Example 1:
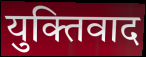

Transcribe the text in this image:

युक्‍तिवाद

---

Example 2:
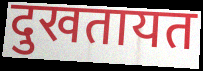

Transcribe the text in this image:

दुखतायत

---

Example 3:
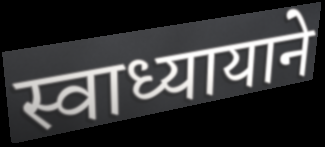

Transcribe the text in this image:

स्वाध्यायाने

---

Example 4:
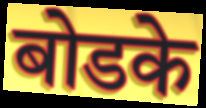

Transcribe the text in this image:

बोडके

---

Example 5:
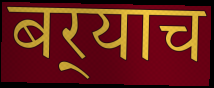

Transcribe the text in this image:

बर्याच